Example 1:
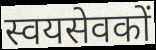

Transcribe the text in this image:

स्वयसेवकों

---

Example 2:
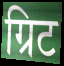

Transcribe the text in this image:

ग्रिट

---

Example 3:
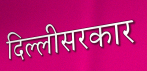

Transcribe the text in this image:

दिल्लीसरकार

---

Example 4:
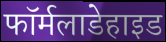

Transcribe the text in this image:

फॉर्मलाडेहाइड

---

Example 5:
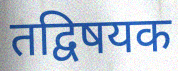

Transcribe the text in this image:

तद्विषयक